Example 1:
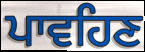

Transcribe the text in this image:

ਪਾਵਹਿਣ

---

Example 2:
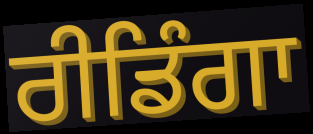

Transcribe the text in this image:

ਰੀਡਿੰਗਾ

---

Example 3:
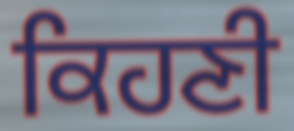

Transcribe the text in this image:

ਕਿਹਣੀ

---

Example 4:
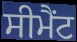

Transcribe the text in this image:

ਸੀਮੈਂਟ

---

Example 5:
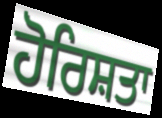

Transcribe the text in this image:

ਹੋਰਿਸ਼ਤਾ